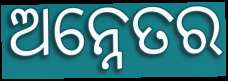
ଅନ୍ନେତର